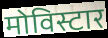
मोविस्टार